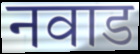
नवाड